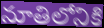
నూతిలోనికి